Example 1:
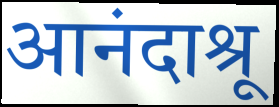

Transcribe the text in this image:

आनंदाश्रू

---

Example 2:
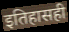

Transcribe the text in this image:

इतिहासही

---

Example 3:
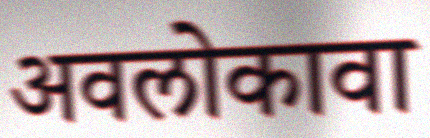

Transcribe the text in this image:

अवलोकावा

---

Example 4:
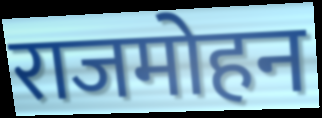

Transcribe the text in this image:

राजमोहन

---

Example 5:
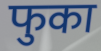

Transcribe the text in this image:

फुका